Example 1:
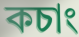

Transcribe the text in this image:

কচাং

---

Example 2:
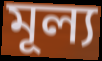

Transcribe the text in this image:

মূল্য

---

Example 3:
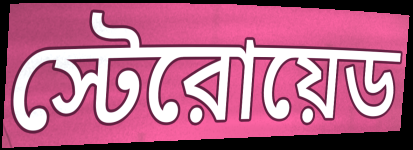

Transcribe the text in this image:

স্টেরোয়েড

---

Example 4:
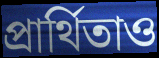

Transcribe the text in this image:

প্রার্থিতাও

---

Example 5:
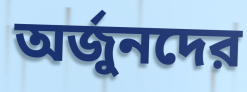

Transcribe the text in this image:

অর্জুনদের